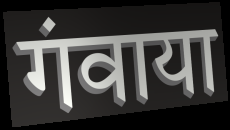
गंवाया